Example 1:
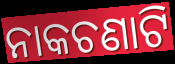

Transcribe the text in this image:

ନାକଚଣାଟି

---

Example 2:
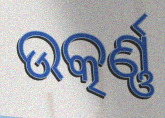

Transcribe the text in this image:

ଉତ୍କର୍ଣ୍ଣ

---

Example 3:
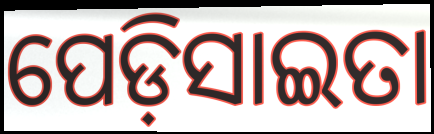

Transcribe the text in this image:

ପେଡ଼ିସାଇତା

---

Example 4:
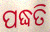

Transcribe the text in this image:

ପଦ୍ଧତି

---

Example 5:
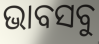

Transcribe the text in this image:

ଭାବସବୁ